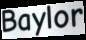
Baylor